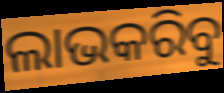
ଲାଭକରିବୁ